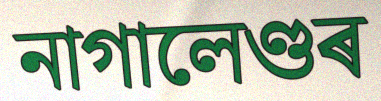
নাগালেণ্ডৰ